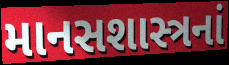
માનસશાસ્ત્રનાં